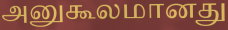
அனுகூலமானது